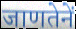
जाणतेनें